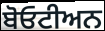
ਬੋਓਟੀਅਨ